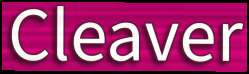
Cleaver